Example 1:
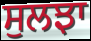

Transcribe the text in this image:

ਸੁਲਝਾ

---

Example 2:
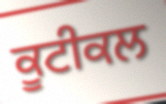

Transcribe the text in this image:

ਕੂਟੀਕਲ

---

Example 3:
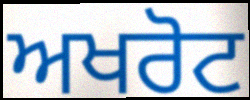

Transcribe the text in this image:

ਅਖਰੋਟ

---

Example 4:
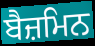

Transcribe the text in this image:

ਬੈਜ਼ਮਿਨ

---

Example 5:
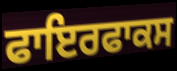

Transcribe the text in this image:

ਫਾਇਰਫਾਕਸ